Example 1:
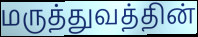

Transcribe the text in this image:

மருத்துவத்தின்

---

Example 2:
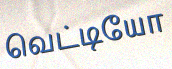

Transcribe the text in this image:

வெட்டியோ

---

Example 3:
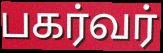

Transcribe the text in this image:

பகர்வர்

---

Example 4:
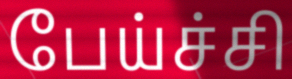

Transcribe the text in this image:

பேய்ச்சி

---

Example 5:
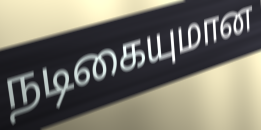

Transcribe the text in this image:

நடிகையுமான